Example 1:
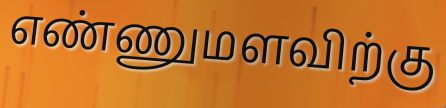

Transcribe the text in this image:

எண்ணுமளவிற்கு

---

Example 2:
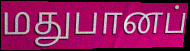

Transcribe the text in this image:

மதுபானப்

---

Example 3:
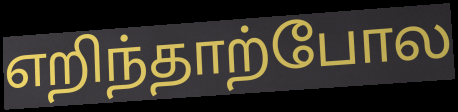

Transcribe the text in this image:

எறிந்தாற்போல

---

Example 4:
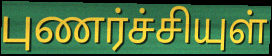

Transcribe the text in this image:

புணர்ச்சியுள்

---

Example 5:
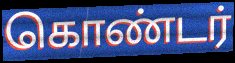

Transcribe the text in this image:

கொண்டர்